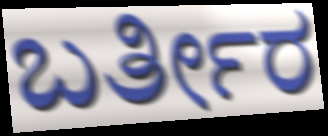
ಬರ್ತೀರ